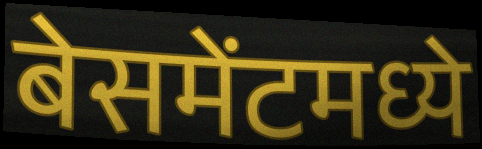
बेसमेंटमध्ये